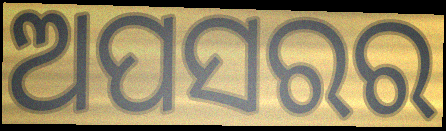
ଅପସରର